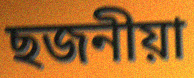
ছজনীয়া